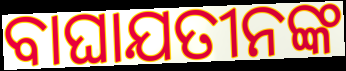
ବାଘାଯତୀନଙ୍କ